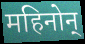
महिनोन्